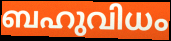
ബഹുവിധം